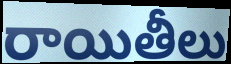
రాయితీలు